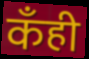
कँही